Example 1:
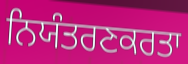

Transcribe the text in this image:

ਨਿਯੰਤਰਣਕਰਤਾ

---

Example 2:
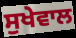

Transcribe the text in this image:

ਸੁਖੇਵਾਲ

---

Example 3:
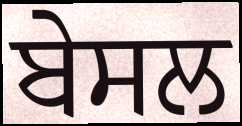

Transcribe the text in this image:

ਬੇਸਲ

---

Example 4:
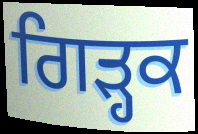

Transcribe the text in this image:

ਗਿੜ੍ਹਕ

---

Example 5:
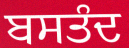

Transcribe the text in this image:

ਬਸਤੰਦ